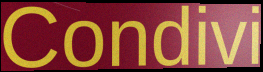
Condivi